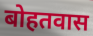
बोहतवास